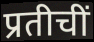
प्रतीचीं